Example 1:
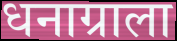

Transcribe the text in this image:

धनाग्राला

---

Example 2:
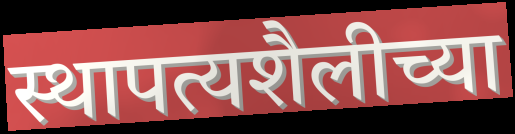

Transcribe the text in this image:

स्थापत्यशैलीच्या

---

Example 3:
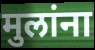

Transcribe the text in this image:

मुलांना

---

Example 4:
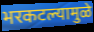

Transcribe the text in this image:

भरकटल्यामुळे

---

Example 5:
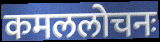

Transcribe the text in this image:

कमललोचनः